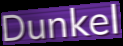
Dunkel